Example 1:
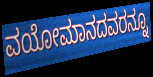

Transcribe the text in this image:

ವಯೋಮಾನದವರನ್ನೂ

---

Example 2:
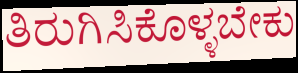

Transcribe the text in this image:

ತಿರುಗಿಸಿಕೊಳ್ಳಬೇಕು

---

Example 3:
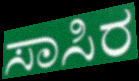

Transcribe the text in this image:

ಸಾಸಿರ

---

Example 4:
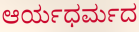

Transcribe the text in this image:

ಆರ್ಯಧರ್ಮದ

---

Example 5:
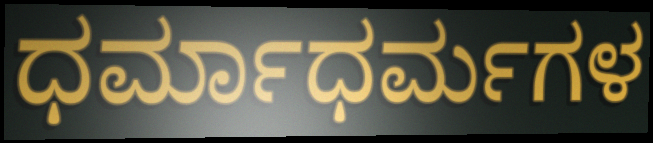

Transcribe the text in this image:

ಧರ್ಮಾಧರ್ಮಗಳ